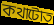
কথাটোত